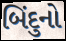
બિંદુનો